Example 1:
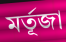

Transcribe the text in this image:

মর্তূজা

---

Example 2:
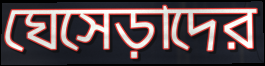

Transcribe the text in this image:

ঘেসেড়াদের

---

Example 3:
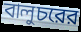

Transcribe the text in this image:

বালুচরের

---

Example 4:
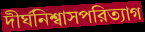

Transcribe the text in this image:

দীর্ঘনিশ্বাসপরিত্যাগ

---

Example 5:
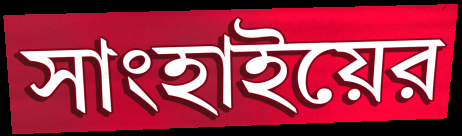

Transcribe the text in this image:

সাংহাইয়ের